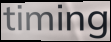
timing